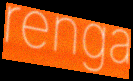
renga